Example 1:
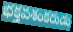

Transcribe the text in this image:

భక్తవశంకరుడు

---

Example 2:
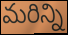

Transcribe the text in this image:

మరిన్ని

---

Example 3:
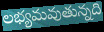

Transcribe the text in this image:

లభ్యమవుతున్నది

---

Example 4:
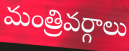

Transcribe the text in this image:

మంత్రివర్గాలు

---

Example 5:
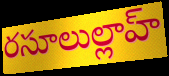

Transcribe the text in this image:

రసూలుల్లాహ్